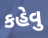
કહેવુ